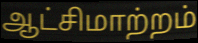
ஆட்சிமாற்றம்